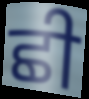
ਛੀ